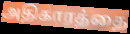
அதிகாரத்தை